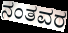
ನಂತವರ